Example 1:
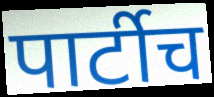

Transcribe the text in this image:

पार्टीच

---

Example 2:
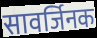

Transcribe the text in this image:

सावर्जिनक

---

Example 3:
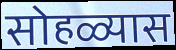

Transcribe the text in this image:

सोहळ्यास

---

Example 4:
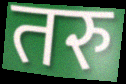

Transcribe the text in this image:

तरु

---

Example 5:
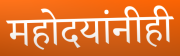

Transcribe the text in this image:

महोदयांनीही